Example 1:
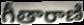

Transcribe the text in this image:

గీతారాణి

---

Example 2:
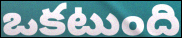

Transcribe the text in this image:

ఒకటుంది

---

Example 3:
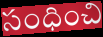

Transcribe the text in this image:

సంధించి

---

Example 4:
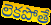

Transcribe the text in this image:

లెకపోతే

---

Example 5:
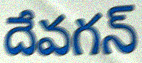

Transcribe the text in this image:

దేవగన్